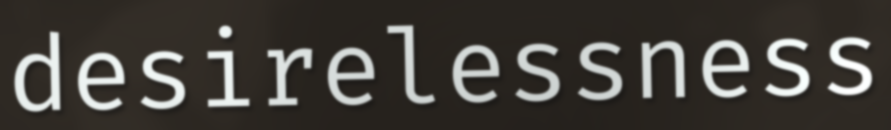
desirelessness